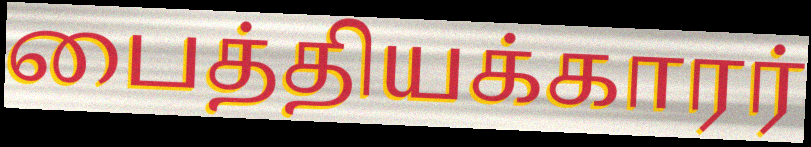
பைத்தியக்காரர்